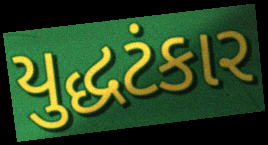
યુદ્ધટંકાર